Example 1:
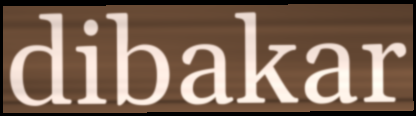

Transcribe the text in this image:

dibakar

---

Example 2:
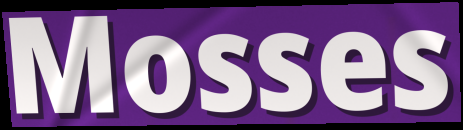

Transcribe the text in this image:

Mosses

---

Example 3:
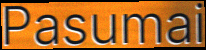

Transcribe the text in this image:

Pasumai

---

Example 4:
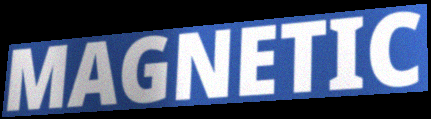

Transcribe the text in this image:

MAGNETIC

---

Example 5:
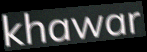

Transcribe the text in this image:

khawar